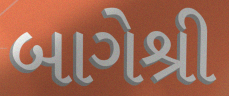
બાગેશ્રી